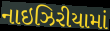
નાઇઝિરીયામાં